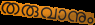
തരുവാനും